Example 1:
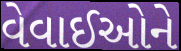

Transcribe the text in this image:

વેવાઈઓને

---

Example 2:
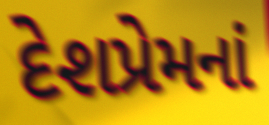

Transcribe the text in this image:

દેશપ્રેમનાં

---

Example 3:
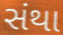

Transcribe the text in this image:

સંથા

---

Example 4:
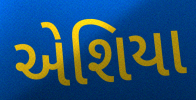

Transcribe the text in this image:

એશિયા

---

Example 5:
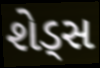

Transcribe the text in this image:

શેડ્સ